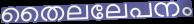
തൈലലേപനം